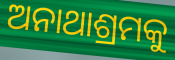
ଅନାଥାଶ୍ରମକୁ